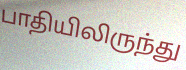
பாதியிலிருந்து